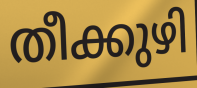
തീക്കുഴി